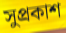
সুপ্রকাশ